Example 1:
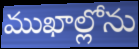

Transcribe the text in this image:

ముఖాల్లోను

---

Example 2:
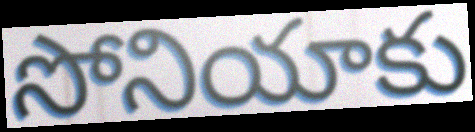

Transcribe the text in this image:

సోనియాకు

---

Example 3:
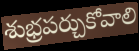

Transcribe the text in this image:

శుభ్రపర్చుకోవాలి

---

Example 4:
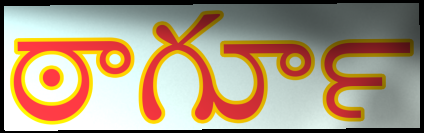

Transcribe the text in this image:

ఠాగూర్‍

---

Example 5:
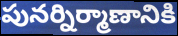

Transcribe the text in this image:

పునర్నిర్మాణానికి